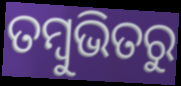
ତମ୍ବୁଭିତରୁ